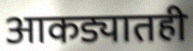
आकड्यातही